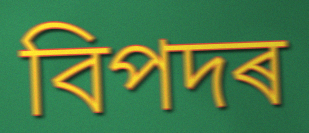
বিপদৰ